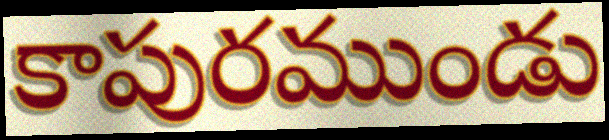
కాపురముండు